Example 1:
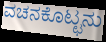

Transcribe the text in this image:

ವಚನಕೊಟ್ಟನು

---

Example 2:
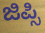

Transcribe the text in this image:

ಜಿಪ್ಸಿ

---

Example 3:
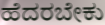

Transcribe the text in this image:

ಹೆದರಬೇಕು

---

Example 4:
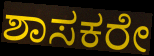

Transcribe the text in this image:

ಶಾಸಕರೇ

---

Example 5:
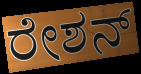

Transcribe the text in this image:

ರೇಶನ್